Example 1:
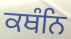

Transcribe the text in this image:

ਕਥੰਨਿ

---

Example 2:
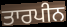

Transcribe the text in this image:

ਤਾਰਪੀਨ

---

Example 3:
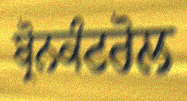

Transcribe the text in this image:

ਬ੍ਰੋਨਕੰਟਰੋਲ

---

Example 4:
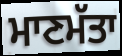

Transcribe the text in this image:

ਮਾਣਮੱਤਾ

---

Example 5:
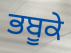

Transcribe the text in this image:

ਭਬੂਕੇ